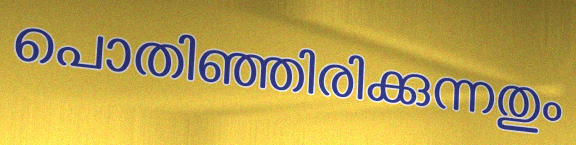
പൊതിഞ്ഞിരിക്കുന്നതും